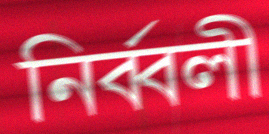
নিৰ্ব্বলী